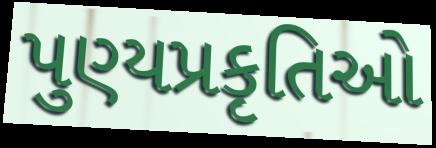
પુણ્યપ્રકૃતિઓ